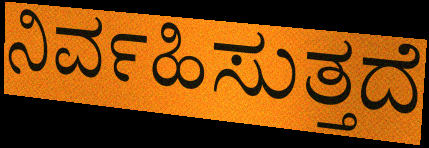
ನಿರ್ವಹಿಸುತ್ತದೆ